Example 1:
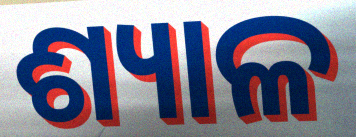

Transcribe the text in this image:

ଶ୍ୟାଳ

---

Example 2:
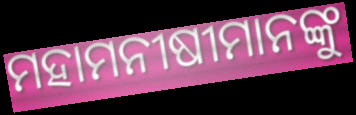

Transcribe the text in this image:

ମହାମନୀଷୀମାନଙ୍କୁ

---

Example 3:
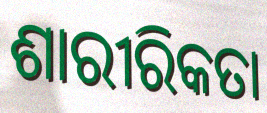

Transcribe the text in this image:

ଶାରୀରିକତା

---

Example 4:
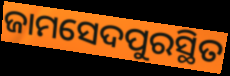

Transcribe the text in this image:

ଜାମସେଦପୁରସ୍ଥିତ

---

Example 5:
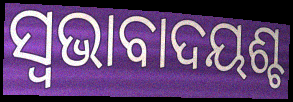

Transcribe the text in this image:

ସ୍ଵଭାବାଦୟଶ୍ଚ